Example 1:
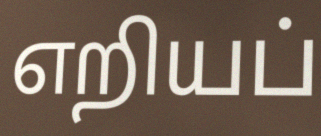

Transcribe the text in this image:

எறியப்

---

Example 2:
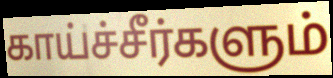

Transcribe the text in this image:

காய்ச்சீர்களும்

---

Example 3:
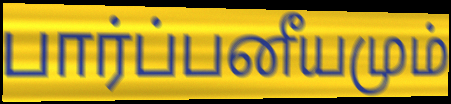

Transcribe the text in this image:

பார்ப்பனீயமும்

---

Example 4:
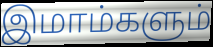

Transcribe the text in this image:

இமாம்களும்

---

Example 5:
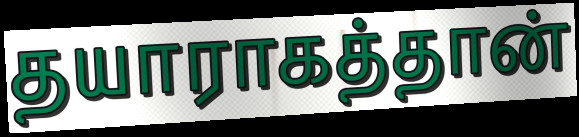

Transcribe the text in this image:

தயாராகத்தான்